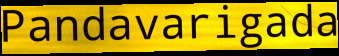
Pandavarigada